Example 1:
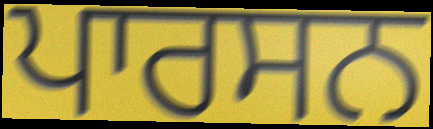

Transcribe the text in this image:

ਪਾਰਸਨ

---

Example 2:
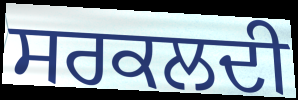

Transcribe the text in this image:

ਸਰਕਲਦੀ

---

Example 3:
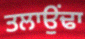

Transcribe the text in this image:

ਤਲਾਉਂਢਾ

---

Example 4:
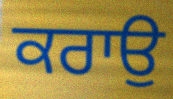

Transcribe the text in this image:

ਕਰਾਉ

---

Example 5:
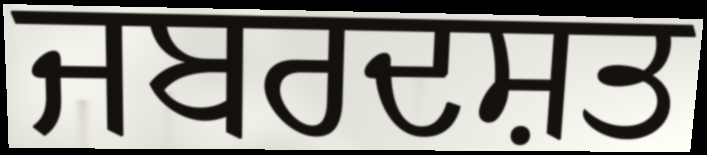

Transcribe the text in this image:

ਜਬਰਦਸ਼ਤ